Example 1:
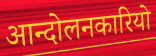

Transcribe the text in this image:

आन्दोलनकारियो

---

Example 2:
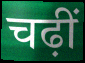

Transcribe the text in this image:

चढ़ीं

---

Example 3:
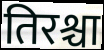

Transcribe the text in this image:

तिरश्चा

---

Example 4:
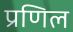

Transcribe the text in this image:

प्रणिल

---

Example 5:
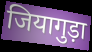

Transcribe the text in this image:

जियागुड़ा